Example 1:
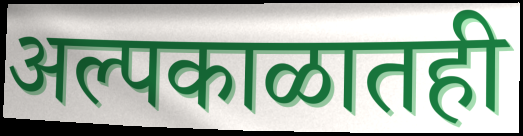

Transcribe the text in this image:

अल्पकाळातही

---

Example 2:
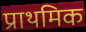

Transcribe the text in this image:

प्राथमिक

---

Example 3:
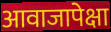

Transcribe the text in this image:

आवाजापेक्षा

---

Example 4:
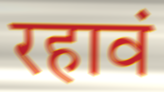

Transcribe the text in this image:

रहावं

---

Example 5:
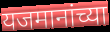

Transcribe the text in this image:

यजमानांच्या